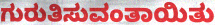
ಗುರುತಿಸುವಂತಾಯಿತು